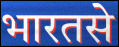
भारतसे